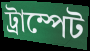
ট্রাম্পেট